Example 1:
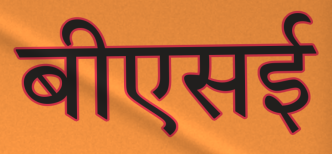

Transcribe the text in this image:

बीएसई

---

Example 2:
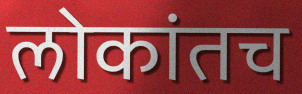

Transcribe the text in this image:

लोकांतच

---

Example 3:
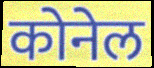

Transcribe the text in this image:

कोनेल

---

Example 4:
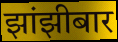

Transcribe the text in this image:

झांझीबार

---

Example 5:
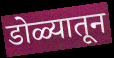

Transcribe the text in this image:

डोळ्यातून